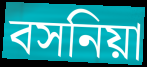
বসনিয়া